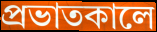
প্রভাতকালে